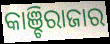
କାଞ୍ଚିରାଜାର